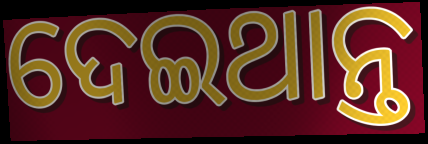
ଦେଇଥାନ୍ତ